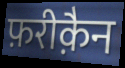
फ़रीक़ैन